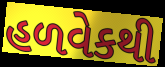
હળવેકથી